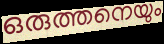
ഒരുത്തനെയും